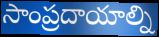
సాంప్రదాయాల్ని